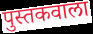
पुस्तकवाला